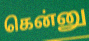
கென்னு